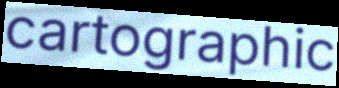
cartographic